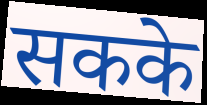
सकके